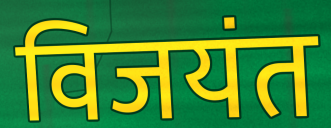
विजयंत